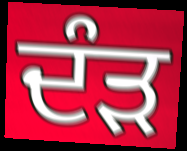
ਦੰੜ